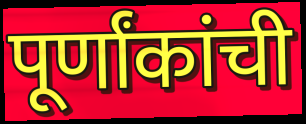
पूर्णांकांची